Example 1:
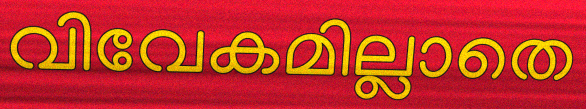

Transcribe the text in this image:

വിവേകമില്ലാതെ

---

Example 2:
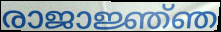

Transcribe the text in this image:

രാജാജ്ഞ്ഞ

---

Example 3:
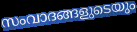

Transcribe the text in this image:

സംവാദങ്ങളുടെയും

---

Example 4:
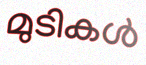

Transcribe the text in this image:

മുടികൾ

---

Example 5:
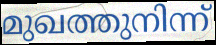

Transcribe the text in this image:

മുഖത്തുനിന്ന്